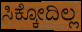
ಸಿಕ್ಕೋದಿಲ್ಲ